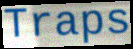
Traps